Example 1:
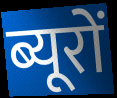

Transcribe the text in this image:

ब्यूरों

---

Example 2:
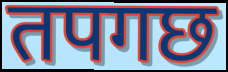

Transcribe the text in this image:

तपगछ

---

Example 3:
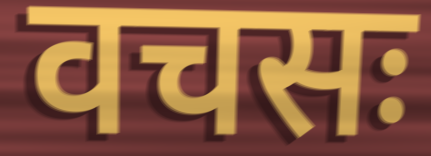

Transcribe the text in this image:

वचसः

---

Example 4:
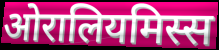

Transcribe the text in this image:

ओरालियमिस्स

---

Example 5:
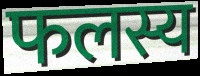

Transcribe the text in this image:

फलस्य